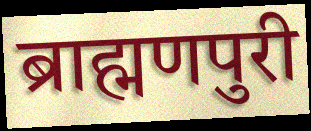
ब्राह्मणपुरी